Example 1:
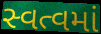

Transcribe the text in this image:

સ્વત્વમાં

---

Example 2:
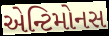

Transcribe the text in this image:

એન્ટિમોનસ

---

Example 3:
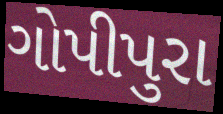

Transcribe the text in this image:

ગોપીપુરા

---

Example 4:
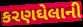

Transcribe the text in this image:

કરણઘેલાની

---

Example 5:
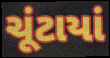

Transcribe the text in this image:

ચૂંટાયાં